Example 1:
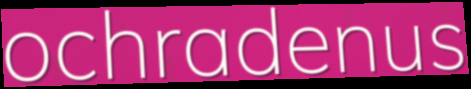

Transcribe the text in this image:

ochradenus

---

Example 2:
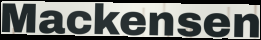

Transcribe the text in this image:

Mackensen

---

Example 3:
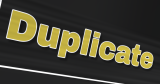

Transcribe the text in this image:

Duplicate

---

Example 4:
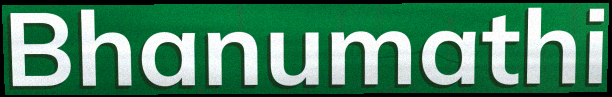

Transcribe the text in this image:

Bhanumathi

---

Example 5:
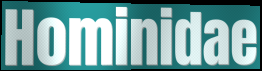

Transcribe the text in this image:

Hominidae